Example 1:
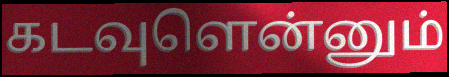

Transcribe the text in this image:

கடவுளென்னும்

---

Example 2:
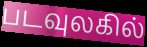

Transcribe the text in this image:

படவுலகில்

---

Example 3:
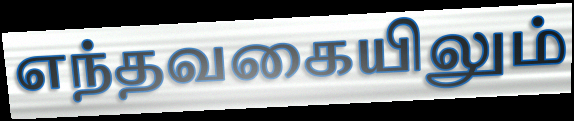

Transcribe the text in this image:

எந்தவகையிலும்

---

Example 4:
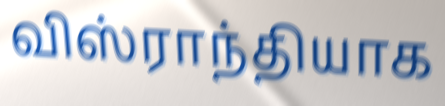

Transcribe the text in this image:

விஸ்ராந்தியாக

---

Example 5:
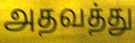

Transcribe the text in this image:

அதவத்து